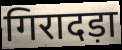
गिरादड़ा